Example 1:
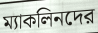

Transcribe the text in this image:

ম্যাকলিনদের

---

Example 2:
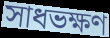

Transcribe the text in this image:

সাধভক্ষণ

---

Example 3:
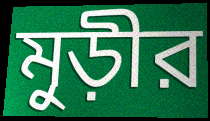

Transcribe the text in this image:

মুড়ীর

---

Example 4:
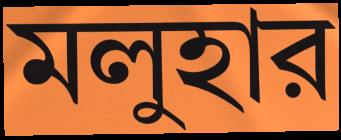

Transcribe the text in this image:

মলুহার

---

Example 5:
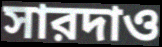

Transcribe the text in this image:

সারদাও